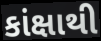
કાંક્ષાથી